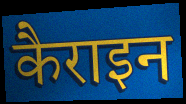
कैराइन